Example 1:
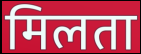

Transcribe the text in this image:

मिलता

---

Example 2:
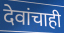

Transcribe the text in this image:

देवांचाही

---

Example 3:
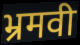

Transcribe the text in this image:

भ्रमवी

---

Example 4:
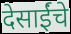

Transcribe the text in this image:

देसाईंचे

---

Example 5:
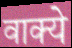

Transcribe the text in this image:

वाक्ये